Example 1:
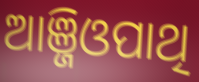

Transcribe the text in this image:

ଆଞ୍ଜିଓପାଥି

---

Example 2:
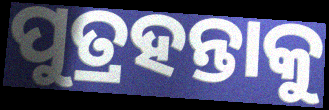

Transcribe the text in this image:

ପୁତ୍ରହନ୍ତାକୁ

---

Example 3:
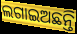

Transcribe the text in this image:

ଲଗାଇଅଛନ୍ତି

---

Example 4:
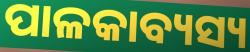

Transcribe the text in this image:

ପାଳକାବ୍ୟସ୍ୟ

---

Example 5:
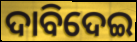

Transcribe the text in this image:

ଦାବିଦେଇ